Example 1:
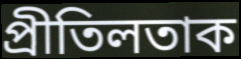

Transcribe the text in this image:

প্ৰীতিলতাক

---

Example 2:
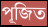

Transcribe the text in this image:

পূজিত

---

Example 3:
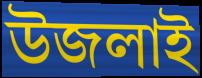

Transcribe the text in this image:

উজলাই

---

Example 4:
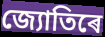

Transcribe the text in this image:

জ্যোতিৰে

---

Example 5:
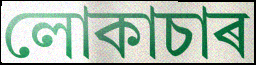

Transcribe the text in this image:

লোকাচাৰ